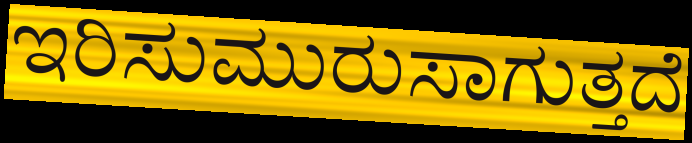
ಇರಿಸುಮುರುಸಾಗುತ್ತದೆ